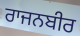
ਰਾਜਨਬੀਰ